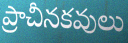
ప్రాచీనకవులు